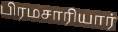
பிரமசாரியார்